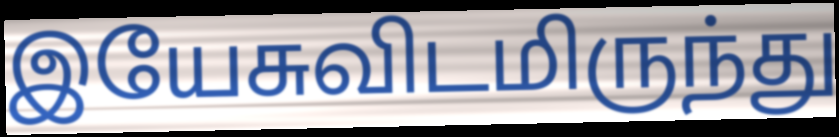
இயேசுவிடமிருந்து